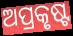
ଅପ୍ରକୃଷ୍ଟ